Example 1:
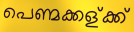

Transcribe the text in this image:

പെണ്മക്കള്ക്ക്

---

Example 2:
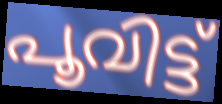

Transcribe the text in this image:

പൂവിട്ട്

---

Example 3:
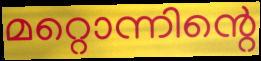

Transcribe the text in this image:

മറ്റൊന്നിന്റെ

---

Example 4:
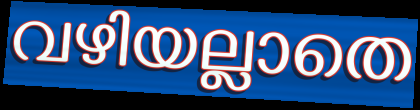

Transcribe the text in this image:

വഴിയല്ലാതെ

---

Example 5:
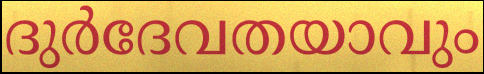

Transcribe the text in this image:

ദുർദേവതയാവും